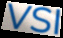
VSI